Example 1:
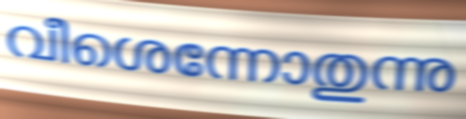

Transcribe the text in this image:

വീശെന്നോതുന്നു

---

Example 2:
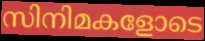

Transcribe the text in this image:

സിനിമകളോടെ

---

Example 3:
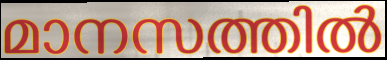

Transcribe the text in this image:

മാനസത്തിൽ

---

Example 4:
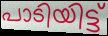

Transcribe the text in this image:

പാടിയിട്ട്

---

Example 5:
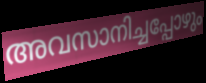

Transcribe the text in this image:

അവസാനിച്ചപ്പോഴും